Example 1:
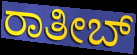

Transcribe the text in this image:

ರಾತೀಬ್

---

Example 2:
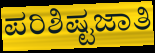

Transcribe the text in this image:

ಪರಿಶಿಷ್ಟಜಾತಿ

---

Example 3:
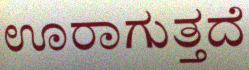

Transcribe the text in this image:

ಊರಾಗುತ್ತದೆ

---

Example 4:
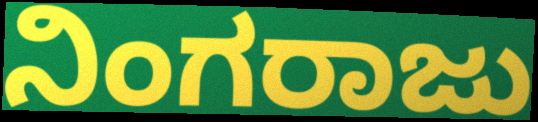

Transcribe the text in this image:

ನಿಂಗರಾಜು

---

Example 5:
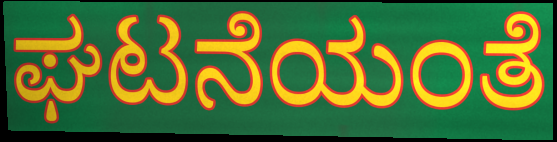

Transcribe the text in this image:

ಘಟನೆಯಂತೆ